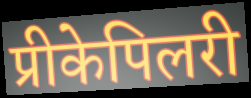
प्रीकेपिलरी